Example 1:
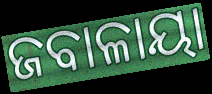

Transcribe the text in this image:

ଜବାଳାୟା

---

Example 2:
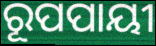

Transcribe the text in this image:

ରୂପପାୟୀ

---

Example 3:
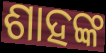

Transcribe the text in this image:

ଶାହଙ୍କ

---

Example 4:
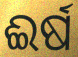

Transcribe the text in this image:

ଈର୍ଷ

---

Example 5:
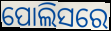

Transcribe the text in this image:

ପୋଲିସରେ